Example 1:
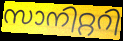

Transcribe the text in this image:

സാനിറ്ററി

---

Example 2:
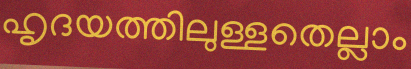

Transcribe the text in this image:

ഹൃദയത്തിലുള്ളതെല്ലാം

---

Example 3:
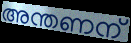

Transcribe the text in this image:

അന്തണന്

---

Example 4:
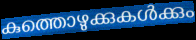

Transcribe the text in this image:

കുത്തൊഴുക്കുകൾക്കും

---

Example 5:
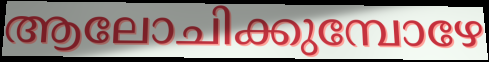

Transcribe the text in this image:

ആലോചിക്കുമ്പോഴേ